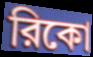
রিকো